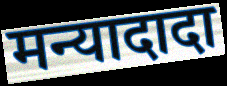
मन्यादादा